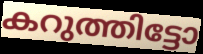
കറുത്തിട്ടോ